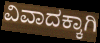
ವಿವಾದಕ್ಕಾಗಿ